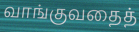
வாங்குவதைத்